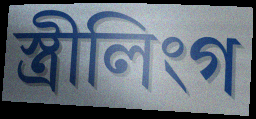
স্ত্ৰীলিংগ